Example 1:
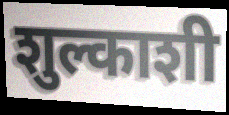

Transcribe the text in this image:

शुल्काशी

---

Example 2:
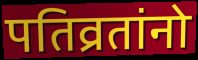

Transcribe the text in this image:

पतिव्रतांनो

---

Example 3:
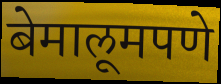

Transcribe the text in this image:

बेमालूमपणे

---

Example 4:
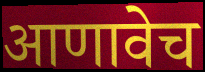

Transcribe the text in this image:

आणावेच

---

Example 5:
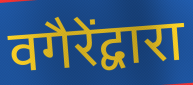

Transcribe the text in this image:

वगैरेंद्वारा